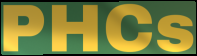
PHCs